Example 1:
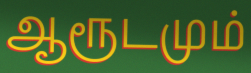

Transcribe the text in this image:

ஆரூடமும்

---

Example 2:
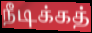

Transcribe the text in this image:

நீடிக்கத்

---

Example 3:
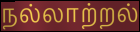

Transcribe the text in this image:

நல்லாற்றல்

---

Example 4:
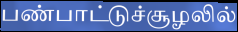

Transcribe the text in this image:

பண்பாட்டுச்சூழலில்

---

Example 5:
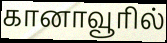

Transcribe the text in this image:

கானாவூரில்